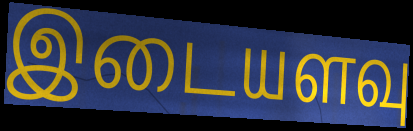
இடையளவு